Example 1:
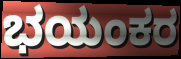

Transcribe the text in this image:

ಭಯಂಕರ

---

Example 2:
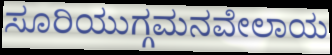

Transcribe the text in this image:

ಸೂರಿಯುಗ್ಗಮನವೇಲಾಯ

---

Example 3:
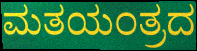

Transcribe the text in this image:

ಮತಯಂತ್ರದ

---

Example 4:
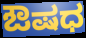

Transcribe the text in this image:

ಔಷಧ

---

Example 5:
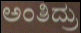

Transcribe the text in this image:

ಅಂತಿದ್ರು